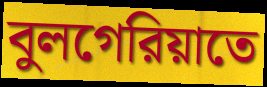
বুলগেরিয়াতে